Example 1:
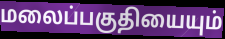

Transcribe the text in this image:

மலைப்பகுதியையும்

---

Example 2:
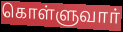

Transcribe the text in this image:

கொள்ளுவார்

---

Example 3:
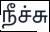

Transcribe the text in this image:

நீச்சு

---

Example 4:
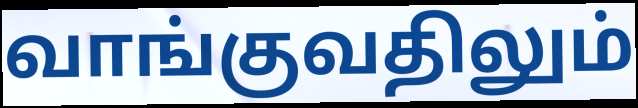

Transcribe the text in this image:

வாங்குவதிலும்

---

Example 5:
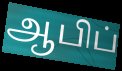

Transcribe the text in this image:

ஆபிப்